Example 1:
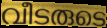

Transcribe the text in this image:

വീടരുടെ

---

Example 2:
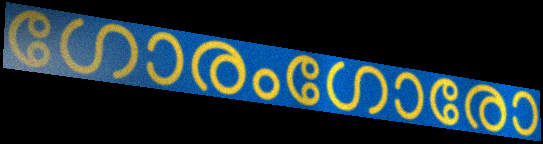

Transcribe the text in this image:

ഗോരംഗോരോ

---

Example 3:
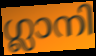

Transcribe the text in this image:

ഗ്ലാനി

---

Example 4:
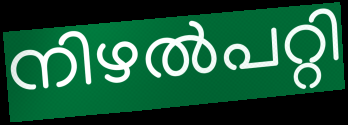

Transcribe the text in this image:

നിഴൽപറ്റി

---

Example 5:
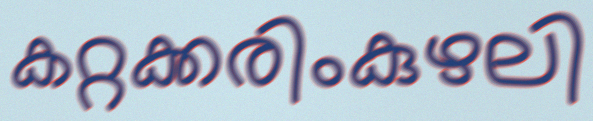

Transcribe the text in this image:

കറ്റക്കരിംകുഴലി